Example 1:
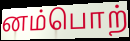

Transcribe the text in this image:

னம்பொற்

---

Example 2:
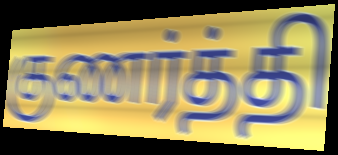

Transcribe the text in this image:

குணர்த்தி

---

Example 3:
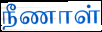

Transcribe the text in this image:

நீணாள்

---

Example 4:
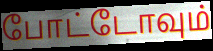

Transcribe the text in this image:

போட்டோவும்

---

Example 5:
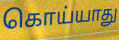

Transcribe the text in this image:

கொய்யாது